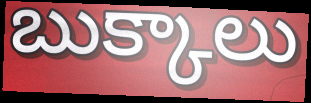
బుక్కాలు